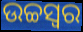
ଉଚ୍ଚସ୍ବର